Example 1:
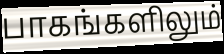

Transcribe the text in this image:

பாகங்களிலும்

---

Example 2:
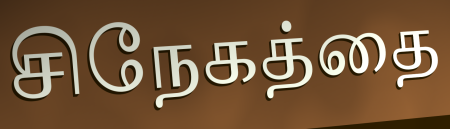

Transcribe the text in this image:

சிநேகத்தை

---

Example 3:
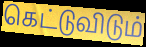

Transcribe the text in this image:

கெட்டுவிடும்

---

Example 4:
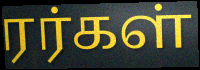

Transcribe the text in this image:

ரர்கள்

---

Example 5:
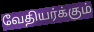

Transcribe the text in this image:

வேதியர்க்கும்